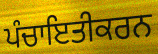
ਪੰਚਾਇਤੀਕਰਨ